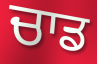
ਚਾਡ